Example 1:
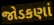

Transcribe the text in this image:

જોડકણાં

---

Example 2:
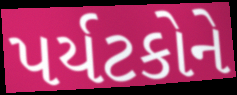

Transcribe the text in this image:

પર્યટકોને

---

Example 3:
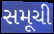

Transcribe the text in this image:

સમૂચી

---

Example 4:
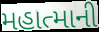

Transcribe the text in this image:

મહાત્માની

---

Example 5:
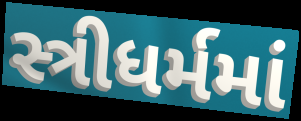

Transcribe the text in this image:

સ્ત્રીધર્મમાં